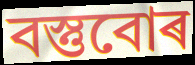
বস্তুবোৰ